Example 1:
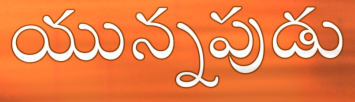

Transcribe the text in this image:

యున్నపుడు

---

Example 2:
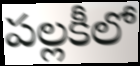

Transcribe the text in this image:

పల్లకీలో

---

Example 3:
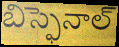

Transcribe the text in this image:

బిస్ఫెనాల్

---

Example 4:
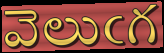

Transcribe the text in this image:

వెలుఁగ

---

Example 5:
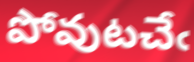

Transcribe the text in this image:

పోవుటచేఁ